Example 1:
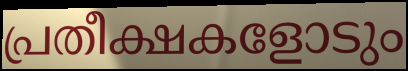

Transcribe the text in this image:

പ്രതീക്ഷകളോടും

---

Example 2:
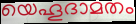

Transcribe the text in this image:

യെഹൂദാമതം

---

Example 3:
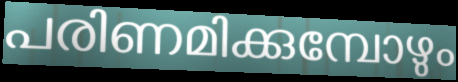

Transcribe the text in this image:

പരിണമിക്കുമ്പോഴും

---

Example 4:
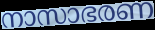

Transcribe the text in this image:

നാസാഭരണ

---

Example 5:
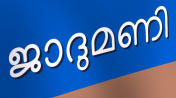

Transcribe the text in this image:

ജാദുമണി